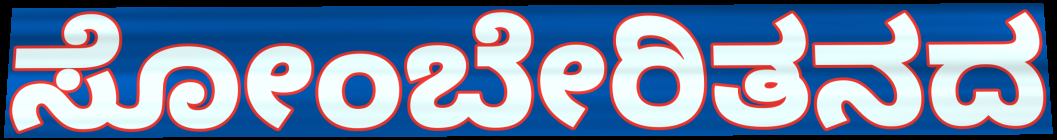
ಸೋಂಬೇರಿತನದ